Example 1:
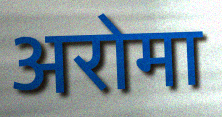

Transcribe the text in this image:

अरोमा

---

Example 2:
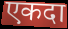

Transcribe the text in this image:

एकदा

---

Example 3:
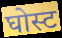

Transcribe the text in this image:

घोस्‍ट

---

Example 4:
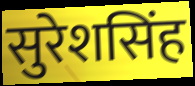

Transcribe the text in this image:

सुरेशसिंह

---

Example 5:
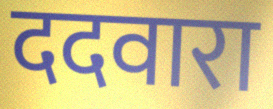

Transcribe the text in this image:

ददवारा